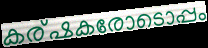
കര്ഷകരോടൊപ്പം